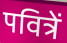
पवित्रें